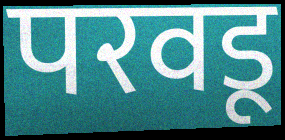
परवडू